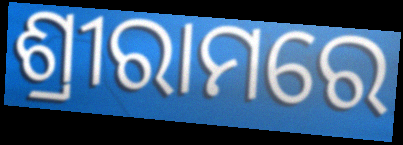
ଶ୍ରୀରାମରେ